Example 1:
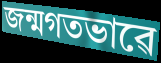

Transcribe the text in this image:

জন্মগতভাৱে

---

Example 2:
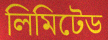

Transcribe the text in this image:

লিমিটেড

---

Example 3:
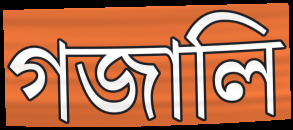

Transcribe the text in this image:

গজালি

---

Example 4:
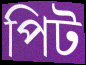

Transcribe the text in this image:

পিট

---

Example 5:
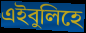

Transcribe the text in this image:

এইবুলিহে